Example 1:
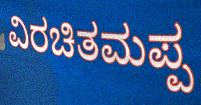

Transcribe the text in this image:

ವಿರಚಿತಮಪ್ಪ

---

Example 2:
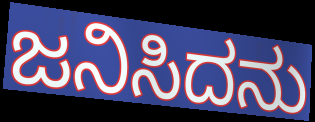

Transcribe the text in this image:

ಜನಿಸಿದನು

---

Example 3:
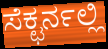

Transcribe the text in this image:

ಸೆಕ್ಟರ್ನಲ್ಲಿ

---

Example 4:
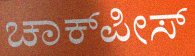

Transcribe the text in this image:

ಚಾಕ್‍ಪೀಸ್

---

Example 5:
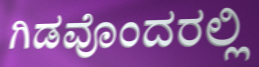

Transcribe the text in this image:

ಗಿಡವೊಂದರಲ್ಲಿ